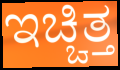
ಇಚ್ಚಿತ್ತ